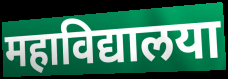
महाविद्यालया